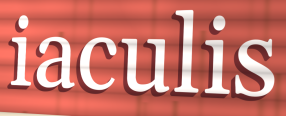
iaculis